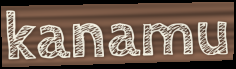
kanamu